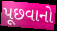
પૂછવાનો